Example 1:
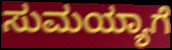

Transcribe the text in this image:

ಸುಮಯ್ಯಾಗೆ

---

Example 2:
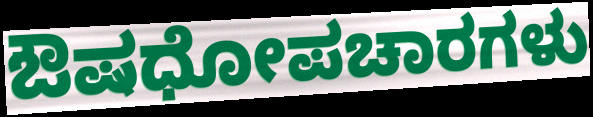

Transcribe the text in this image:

ಔಷಧೋಪಚಾರಗಳು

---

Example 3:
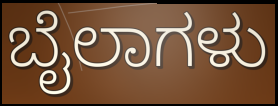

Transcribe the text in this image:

ಬೈಲಾಗಳು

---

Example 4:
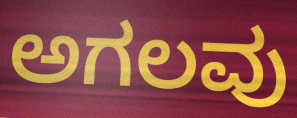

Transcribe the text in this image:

ಅಗಲವು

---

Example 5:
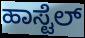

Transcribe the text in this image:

ಹಾಸ್ಟೆಲ್